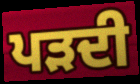
ਪੜਦੀ